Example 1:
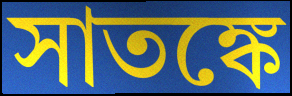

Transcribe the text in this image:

সাতঙ্কে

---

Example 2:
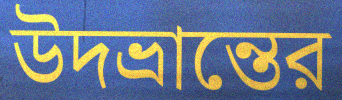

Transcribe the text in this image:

উদভ্রান্তের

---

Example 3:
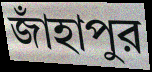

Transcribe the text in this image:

জাঁহাপুর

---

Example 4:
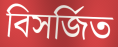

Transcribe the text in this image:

বিসর্জিত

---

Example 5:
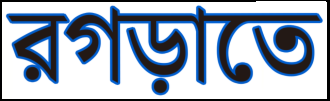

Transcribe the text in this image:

রগড়াতে